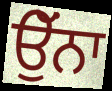
ਉਂੱਨਾ